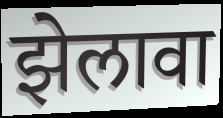
झेलावा